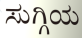
ಸುಗ್ಗಿಯ